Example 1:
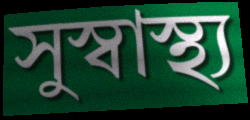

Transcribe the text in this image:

সুস্বাস্থ্য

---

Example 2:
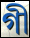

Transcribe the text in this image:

গী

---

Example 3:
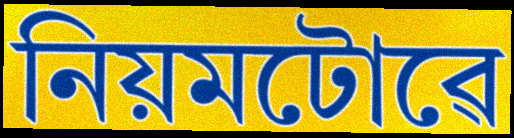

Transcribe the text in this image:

নিয়মটোৱে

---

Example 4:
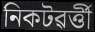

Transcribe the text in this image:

নিকটৱৰ্ত্তী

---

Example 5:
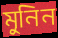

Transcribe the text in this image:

মুনিন